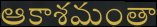
ఆకాశమంతా